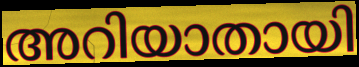
അറിയാതായി